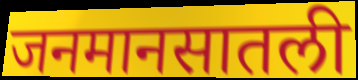
जनमानसातली